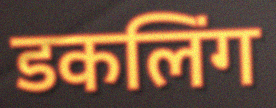
डकलिंग